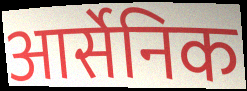
आर्सेनिक